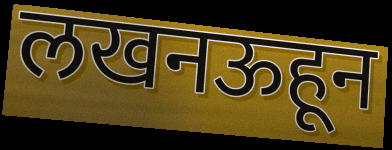
लखनऊहून